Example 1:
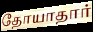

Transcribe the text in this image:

தோயாதார்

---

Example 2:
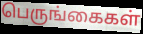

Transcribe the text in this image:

பெருங்கைகள்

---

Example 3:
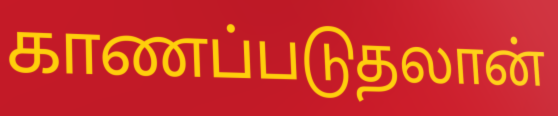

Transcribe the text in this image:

காணப்படுதலான்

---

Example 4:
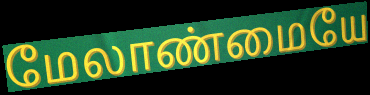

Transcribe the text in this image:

மேலாண்மையே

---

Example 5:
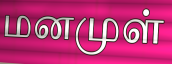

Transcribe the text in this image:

மனமுள்